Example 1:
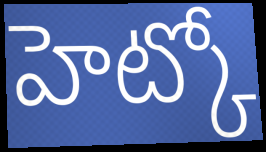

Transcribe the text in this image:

హెట్కో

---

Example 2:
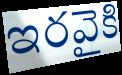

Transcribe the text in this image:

ఇరవైకి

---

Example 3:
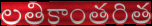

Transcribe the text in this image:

లతికాంతరిత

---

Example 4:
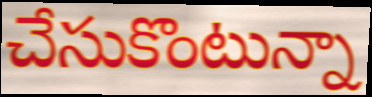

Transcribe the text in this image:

చేసుకొంటున్నా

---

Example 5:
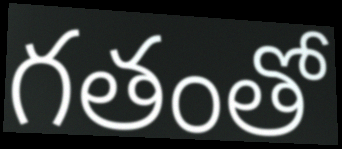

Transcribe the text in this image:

గతంతో